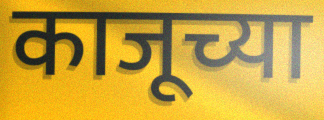
काजूच्या